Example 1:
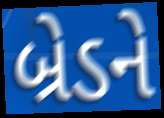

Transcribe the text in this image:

બ્રેડને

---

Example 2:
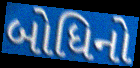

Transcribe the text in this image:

બોધિનો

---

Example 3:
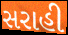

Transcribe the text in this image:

સરાહી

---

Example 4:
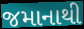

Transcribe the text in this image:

જમાનાથી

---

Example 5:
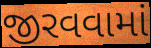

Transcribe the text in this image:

જીરવવામાં